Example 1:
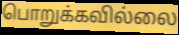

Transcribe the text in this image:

பொறுக்கவில்லை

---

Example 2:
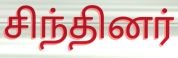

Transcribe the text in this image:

சிந்தினர்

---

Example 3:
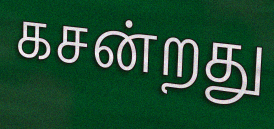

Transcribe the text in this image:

கசன்றது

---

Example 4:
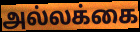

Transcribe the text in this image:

அல்லக்கை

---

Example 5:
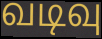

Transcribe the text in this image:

வடிவு